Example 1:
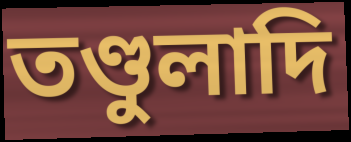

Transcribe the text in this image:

তণ্ডুলাদি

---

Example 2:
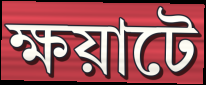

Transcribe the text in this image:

ক্ষয়াটে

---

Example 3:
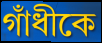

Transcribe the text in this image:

গাঁধীকে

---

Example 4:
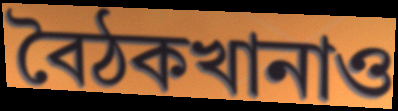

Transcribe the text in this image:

বৈঠকখানাও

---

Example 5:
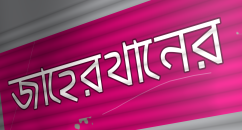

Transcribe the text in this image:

জাহেরথানের